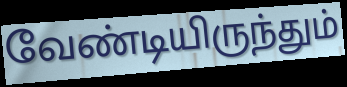
வேண்டியிருந்தும்